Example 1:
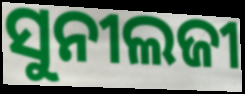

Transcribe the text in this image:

ସୁନୀଲଜୀ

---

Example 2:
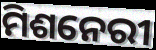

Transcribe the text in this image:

ମିଶନେରୀ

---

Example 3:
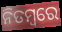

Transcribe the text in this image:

ନିତମ୍ବରେ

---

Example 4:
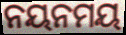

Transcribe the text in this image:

ନୟନମୟ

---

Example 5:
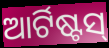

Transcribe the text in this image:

ଆର୍ଟିଷ୍ଟସ୍